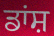
ਡਾਂਸ਼